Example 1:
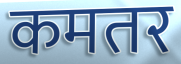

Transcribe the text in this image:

कमतर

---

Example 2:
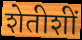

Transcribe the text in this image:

शेतीशीं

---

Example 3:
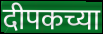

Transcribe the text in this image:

दीपकच्या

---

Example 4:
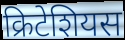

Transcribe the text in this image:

क्रिटेशियस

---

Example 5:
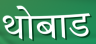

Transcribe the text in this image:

थोबाड